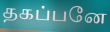
தகப்பனே